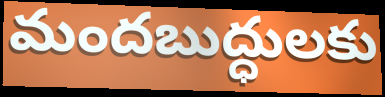
మందబుద్ధులకు